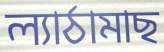
ল্যাঠামাছ